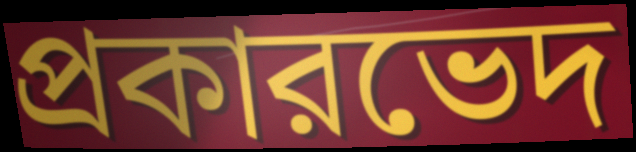
প্রকারভেদ